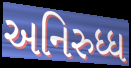
અનિરુધ્ધ